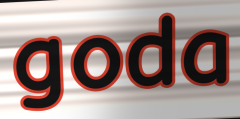
goda